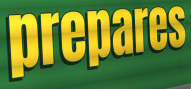
prepares